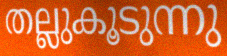
തല്ലുകൂടുന്നു